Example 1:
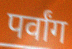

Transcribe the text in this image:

पर्वांग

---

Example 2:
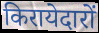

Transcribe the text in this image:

किरायेदारों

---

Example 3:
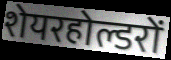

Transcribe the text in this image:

शेयरहोल्डरों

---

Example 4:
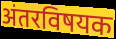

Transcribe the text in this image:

अंतरविषयक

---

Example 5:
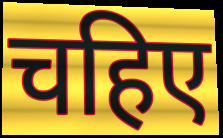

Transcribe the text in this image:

चहिए